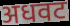
अधवट